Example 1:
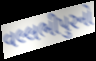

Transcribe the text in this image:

વલ્લભીપુરનો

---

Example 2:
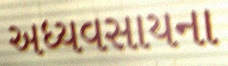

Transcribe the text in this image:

અધ્યવસાયના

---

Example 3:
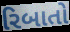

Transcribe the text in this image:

રિબાતો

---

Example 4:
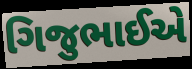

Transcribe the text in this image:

ગિજુભાઈએ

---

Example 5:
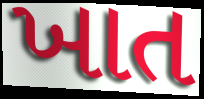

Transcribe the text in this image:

ખાત